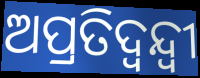
ଅପ୍ରତିଦ୍ବନ୍ଦ୍ବୀ